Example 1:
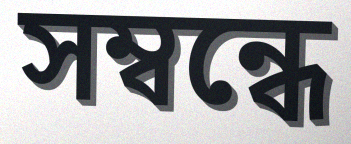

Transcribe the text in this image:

সম্বন্ধে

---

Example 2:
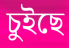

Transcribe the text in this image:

চুইছে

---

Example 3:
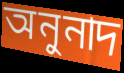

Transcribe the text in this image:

অনুনাদ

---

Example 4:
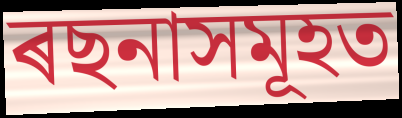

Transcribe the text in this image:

ৰছনাসমূহত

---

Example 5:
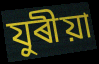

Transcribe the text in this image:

যুৰীয়া